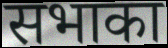
सभाका